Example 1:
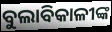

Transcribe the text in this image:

ବୁଲାବିକାଳୀଙ୍କ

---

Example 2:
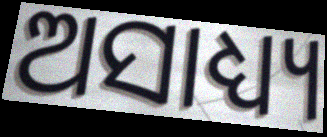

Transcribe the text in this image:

ଅସାଧ୍ୟ୍ୟ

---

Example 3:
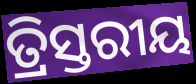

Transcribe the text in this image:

ତ୍ରିସ୍ତରୀୟ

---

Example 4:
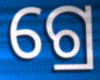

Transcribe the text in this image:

ଗ୍ରେ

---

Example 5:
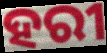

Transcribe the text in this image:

ହରୀ